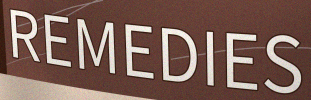
REMEDIES